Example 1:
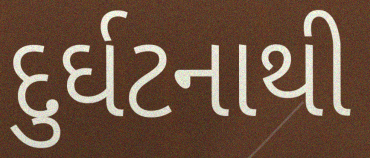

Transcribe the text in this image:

દુર્ઘટનાથી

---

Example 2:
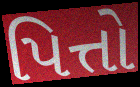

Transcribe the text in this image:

પિત્તો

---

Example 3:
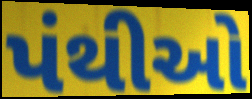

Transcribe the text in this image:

પંથીઓ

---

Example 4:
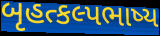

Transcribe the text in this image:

બૃહત્કલ્પભાષ્ય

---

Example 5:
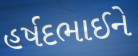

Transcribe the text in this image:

હર્ષદભાઈને